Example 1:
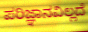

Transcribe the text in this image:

ಪರಿಜ್ಞಾನವಿಲ್ಲದೆ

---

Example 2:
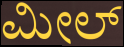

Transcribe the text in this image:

ಮೀಲ್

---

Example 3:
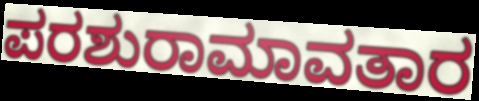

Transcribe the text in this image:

ಪರಶುರಾಮಾವತಾರ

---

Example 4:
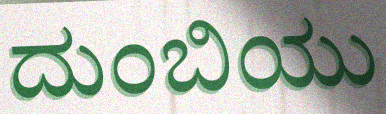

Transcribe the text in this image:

ದುಂಬಿಯು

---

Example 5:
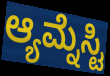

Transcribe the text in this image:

ಆ್ಯಮ್ನೆಸ್ಟಿ